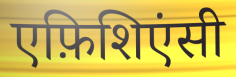
एफ़िशिएंसी